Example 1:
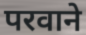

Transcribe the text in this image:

परवाने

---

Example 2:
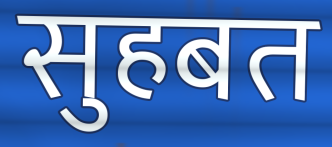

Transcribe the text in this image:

सुहबत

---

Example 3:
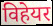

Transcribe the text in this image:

विहेयर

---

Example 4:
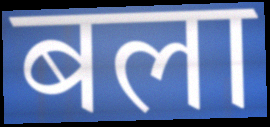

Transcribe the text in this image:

बला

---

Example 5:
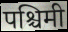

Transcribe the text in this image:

पश्चिमी